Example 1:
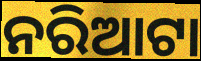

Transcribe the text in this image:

ନରିଆଟା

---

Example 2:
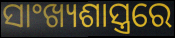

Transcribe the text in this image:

ସାଂଖ୍ୟଶାସ୍ତ୍ରରେ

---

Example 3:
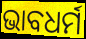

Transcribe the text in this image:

ଭାବଧର୍ମ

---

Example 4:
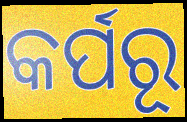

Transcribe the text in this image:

କର୍ପରୂ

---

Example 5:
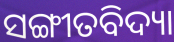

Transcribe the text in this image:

ସଙ୍ଗୀତବିଦ୍ୟା